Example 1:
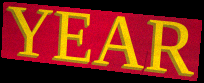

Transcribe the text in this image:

YEAR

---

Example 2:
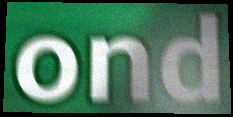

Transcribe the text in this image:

ond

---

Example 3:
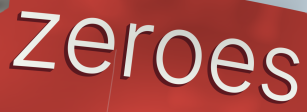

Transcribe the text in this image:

zeroes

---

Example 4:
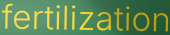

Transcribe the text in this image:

fertilization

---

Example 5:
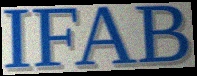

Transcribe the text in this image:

IFAB